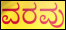
ವರವು